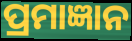
ପ୍ରମାଜ୍ଞାନ